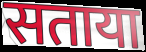
सताया